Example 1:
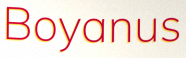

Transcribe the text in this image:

Boyanus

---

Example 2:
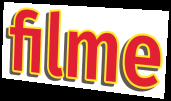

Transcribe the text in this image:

filme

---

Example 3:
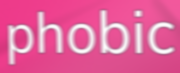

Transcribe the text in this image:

phobic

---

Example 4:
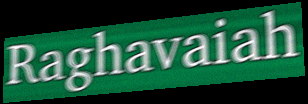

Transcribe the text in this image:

Raghavaiah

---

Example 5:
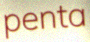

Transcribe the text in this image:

penta